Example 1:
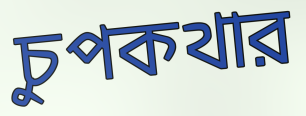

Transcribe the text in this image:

চুপকথার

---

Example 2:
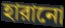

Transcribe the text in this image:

হারানো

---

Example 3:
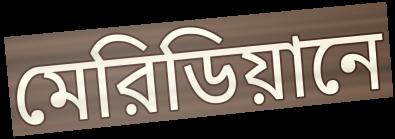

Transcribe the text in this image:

মেরিডিয়ানে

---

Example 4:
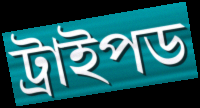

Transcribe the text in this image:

ট্রাইপড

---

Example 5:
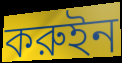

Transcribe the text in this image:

করুইন